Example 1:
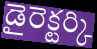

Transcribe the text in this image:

డైరెక్టర్కి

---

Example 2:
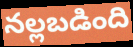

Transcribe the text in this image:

నల్లబడింది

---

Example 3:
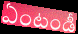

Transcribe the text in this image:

ఏంటండీ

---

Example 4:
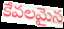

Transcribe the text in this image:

కేవలమైన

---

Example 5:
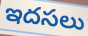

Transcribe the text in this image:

ఇదసలు